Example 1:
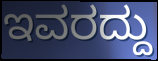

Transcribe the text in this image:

ಇವರದ್ದು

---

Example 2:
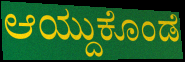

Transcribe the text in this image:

ಆಯ್ದುಕೊಂಡೆ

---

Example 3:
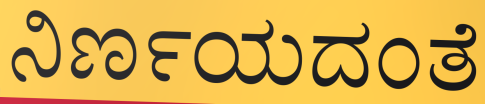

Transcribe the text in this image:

ನಿರ್ಣಯದಂತೆ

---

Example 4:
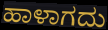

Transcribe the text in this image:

ಹಾಳಾಗದು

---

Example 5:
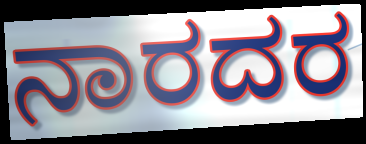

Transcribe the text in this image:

ನಾರದರ